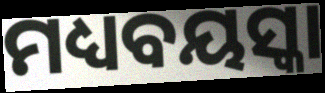
ମଧ୍ୟବୟସ୍କା